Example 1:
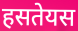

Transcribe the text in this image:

हसतेयस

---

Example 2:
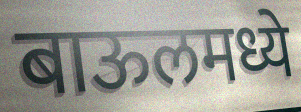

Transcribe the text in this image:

बाऊलमध्ये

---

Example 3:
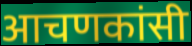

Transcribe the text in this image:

आचणकांसी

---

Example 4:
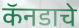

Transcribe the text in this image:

कॅनडाचे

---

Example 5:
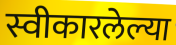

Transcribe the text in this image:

स्वीकारलेल्या